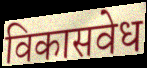
विकासवेध